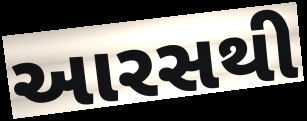
આરસથી